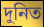
দুনিত